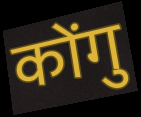
कोंगु